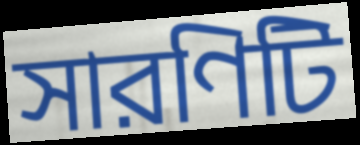
সারণিটি